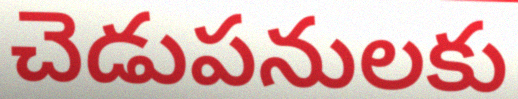
చెడుపనులకు